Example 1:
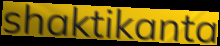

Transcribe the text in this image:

shaktikanta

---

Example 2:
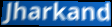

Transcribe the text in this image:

Jharkand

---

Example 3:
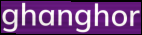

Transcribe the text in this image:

ghanghor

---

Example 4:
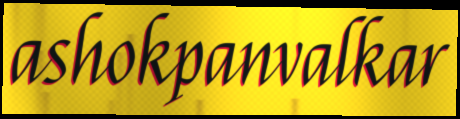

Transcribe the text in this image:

ashokpanvalkar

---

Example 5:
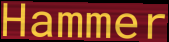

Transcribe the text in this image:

Hammer